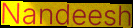
Nandeesh